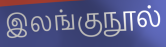
இலங்குநூல்